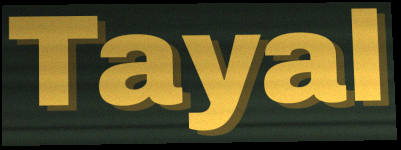
Tayal